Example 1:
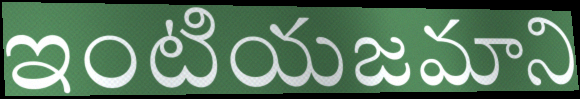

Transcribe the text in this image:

ఇంటియజమాని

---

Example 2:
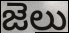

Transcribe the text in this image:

జెలు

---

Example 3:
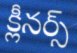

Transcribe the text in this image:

క్లీనర్స్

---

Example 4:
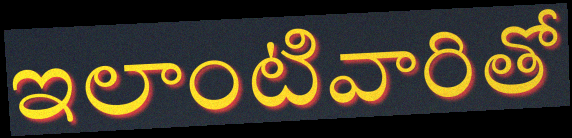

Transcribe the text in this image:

ఇలాంటివారితో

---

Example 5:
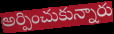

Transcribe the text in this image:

అర్పించుకున్నారు